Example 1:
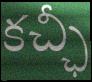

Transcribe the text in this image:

కచ్ఛీ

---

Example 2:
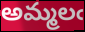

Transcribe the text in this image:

అమ్మలఁ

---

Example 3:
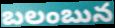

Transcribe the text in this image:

బలంబున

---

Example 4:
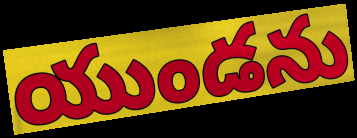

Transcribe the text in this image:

యుండను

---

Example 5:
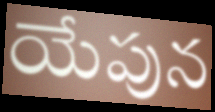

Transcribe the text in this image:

యేపున